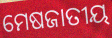
ମେଷଜାତୀୟ